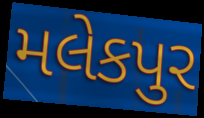
મલેકપુર